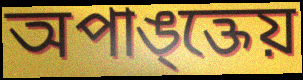
অপাঙ্‌ক্তেয়